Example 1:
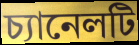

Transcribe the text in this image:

চ্যানেলটি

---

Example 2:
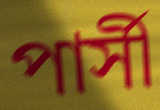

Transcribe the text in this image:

পার্সী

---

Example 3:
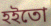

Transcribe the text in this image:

হইতো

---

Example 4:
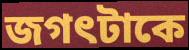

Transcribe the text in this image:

জগৎটাকে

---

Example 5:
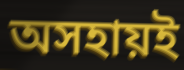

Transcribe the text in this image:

অসহায়ই